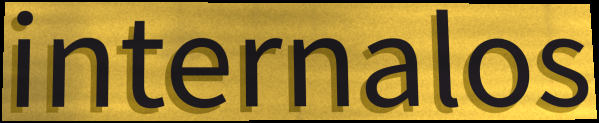
internalos